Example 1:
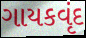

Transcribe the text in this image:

ગાયકવૃંદ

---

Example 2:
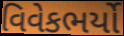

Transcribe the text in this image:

વિવેકભર્યો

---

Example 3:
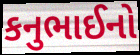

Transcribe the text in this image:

કનુભાઈનો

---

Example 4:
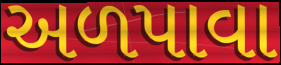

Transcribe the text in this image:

અળપાવા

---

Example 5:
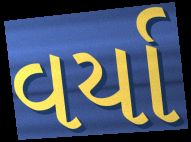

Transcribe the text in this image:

વર્યા